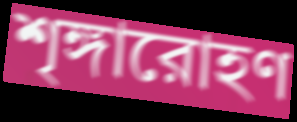
শৃঙ্গারোহণ